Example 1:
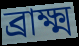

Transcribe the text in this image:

ব্রাক্ষ্ম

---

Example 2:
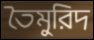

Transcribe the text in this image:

তৈমুরিদ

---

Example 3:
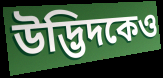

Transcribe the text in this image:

উদ্ভিদকেও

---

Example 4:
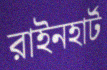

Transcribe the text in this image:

রাইনহার্ট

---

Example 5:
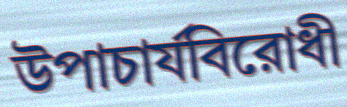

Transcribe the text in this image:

উপাচার্যবিরোধী